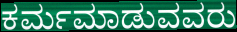
ಕರ್ಮಮಾಡುವವರು